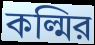
কল্মির